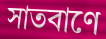
সাতবাণে